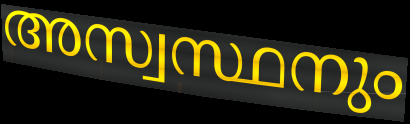
അസ്വസ്ഥനും